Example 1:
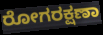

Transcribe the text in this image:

ರೋಗರಕ್ಷಣಾ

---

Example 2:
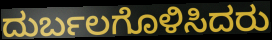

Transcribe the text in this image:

ದುರ್ಬಲಗೊಳಿಸಿದರು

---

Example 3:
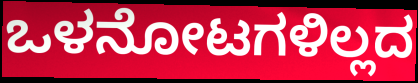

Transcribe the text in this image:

ಒಳನೋಟಗಳಿಲ್ಲದ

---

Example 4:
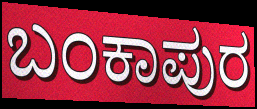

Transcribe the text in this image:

ಬಂಕಾಪುರ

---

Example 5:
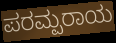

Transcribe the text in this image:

ಪರಮ್ಪರಾಯ